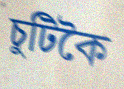
চুটিকৈ